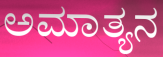
ಅಮಾತ್ಯನ